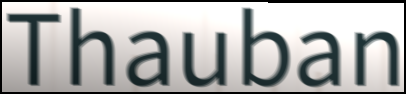
Thauban